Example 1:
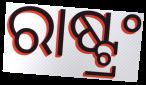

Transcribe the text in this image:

ରାଷ୍ଟ୍ରଂ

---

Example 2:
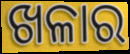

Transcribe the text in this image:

ଖଳାର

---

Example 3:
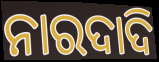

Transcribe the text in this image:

ନାରଦାଦି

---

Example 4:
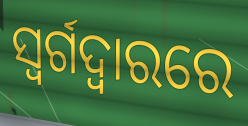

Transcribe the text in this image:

ସ୍ୱର୍ଗଦ୍ୱାରରେ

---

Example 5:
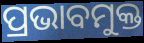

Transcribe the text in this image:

ପ୍ରଭାବମୁକ୍ତ